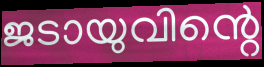
ജടായുവിന്റെ